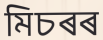
মিচৰৰ